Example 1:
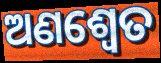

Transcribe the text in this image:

ଅଣଶ୍ୱେତ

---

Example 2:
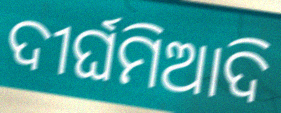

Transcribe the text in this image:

ଦୀର୍ଘମିଆଦି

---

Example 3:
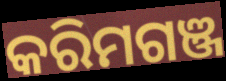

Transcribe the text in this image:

କରିମଗଞ୍ଜ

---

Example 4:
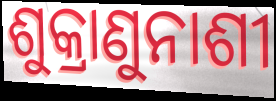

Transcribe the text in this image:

ଶୁକ୍ରାଣୁନାଶୀ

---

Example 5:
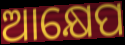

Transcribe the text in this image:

ଆକ୍ଷେପ